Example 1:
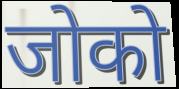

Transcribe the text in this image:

जोको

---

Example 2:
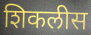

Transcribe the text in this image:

शिकलीस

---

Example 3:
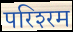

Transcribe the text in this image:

परिश्रम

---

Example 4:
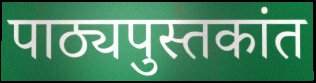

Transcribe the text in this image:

पाठ्यपुस्तकांत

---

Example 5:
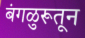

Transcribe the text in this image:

बंगळुरूतून